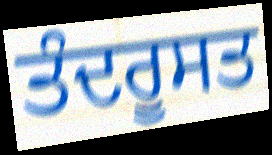
ਤੰਦਰੂਸਤ